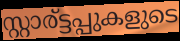
സ്റ്റാര്ട്ടപ്പുകളുടെ